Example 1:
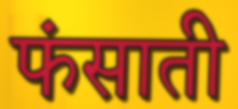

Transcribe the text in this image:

फंसाती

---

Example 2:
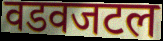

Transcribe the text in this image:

वडवजटल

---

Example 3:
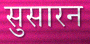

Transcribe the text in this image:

सुसारन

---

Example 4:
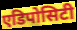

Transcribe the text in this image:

एडिपोसिटी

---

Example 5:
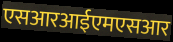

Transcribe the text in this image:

एसआरआईएमएसआर